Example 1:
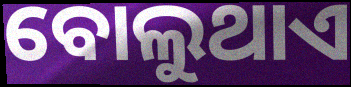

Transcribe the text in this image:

ବୋଲୁଥାଏ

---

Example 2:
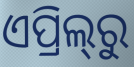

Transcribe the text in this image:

ଏପ୍ରିଲ୍‌ରୁ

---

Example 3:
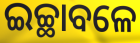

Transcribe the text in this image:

ଇଚ୍ଛାବଳେ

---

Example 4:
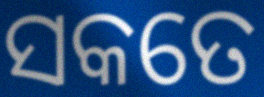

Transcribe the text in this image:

ସକତେ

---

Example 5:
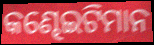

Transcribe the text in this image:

କଣ୍ଢେଇଟିମାନ